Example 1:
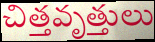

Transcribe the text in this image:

చిత్తవృత్తులు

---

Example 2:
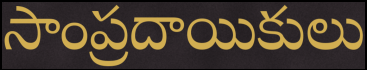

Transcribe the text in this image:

సాంప్రదాయికులు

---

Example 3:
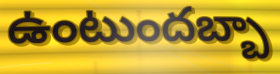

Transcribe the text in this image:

ఉంటుందబ్బా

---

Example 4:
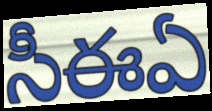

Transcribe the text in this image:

సీఈఏ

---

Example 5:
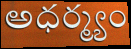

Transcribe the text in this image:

అధర్మ్యం